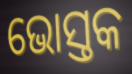
ଭୋସ୍ତକ